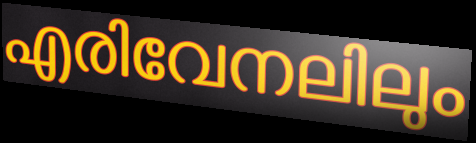
എരിവേനലിലും